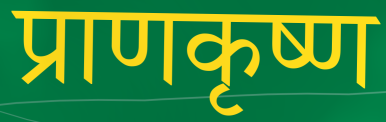
प्राणकृष्ण